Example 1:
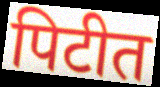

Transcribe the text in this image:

पिटीत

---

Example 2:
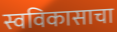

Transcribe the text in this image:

स्वविकासाचा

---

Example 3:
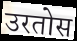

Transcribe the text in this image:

उरतोस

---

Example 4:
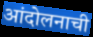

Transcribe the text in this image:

आंदोलनाची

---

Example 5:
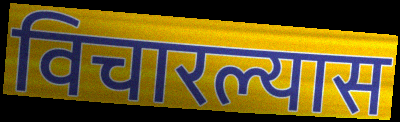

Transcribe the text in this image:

विचारल्यास